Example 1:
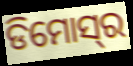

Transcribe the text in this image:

ଡିମୋସ୍‌ର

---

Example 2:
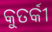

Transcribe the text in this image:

କୁତର୍କୀ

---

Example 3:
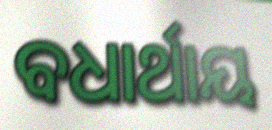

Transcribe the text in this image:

ବଧାର୍ଥାୟ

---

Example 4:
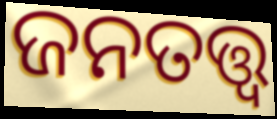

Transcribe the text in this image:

ଜନତତ୍ତ୍ୱ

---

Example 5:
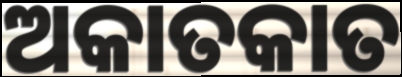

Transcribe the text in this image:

ଅକାତକାତ